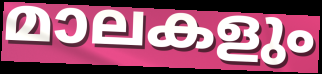
മാലകളും